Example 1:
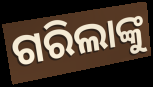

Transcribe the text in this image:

ଗରିଲାଙ୍କୁ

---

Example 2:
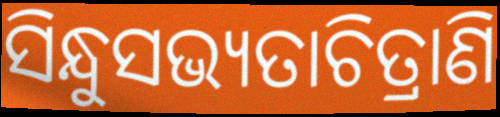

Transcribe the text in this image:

ସିନ୍ଧୁସଭ୍ୟତାଚିତ୍ରାଣି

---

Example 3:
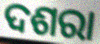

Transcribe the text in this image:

ଦଶରା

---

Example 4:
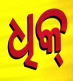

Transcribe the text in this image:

ଧିକ୍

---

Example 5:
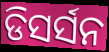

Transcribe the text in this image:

ଡିସର୍ସନ